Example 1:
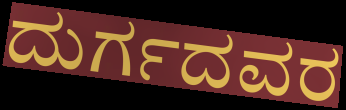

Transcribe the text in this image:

ದುರ್ಗದವರ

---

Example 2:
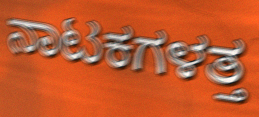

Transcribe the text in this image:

ನಾಟಕಗಳತ್ತ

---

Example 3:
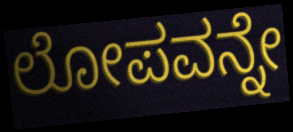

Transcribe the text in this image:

ಲೋಪವನ್ನೇ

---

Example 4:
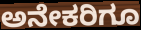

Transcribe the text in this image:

ಅನೇಕರಿಗೂ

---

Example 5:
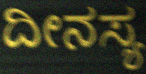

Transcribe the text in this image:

ದೀನಸ್ಯ